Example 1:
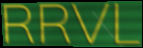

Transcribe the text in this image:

RRVL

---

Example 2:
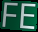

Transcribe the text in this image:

FE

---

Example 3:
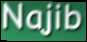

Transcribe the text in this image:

Najib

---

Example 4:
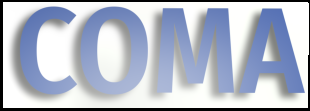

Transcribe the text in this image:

COMA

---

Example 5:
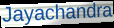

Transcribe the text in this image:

Jayachandra